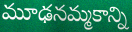
మూఢనమ్మకాన్ని